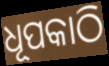
ଧୂପକାଠି